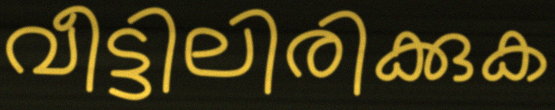
വീട്ടിലിരിക്കുക